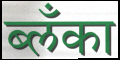
ब्लँका